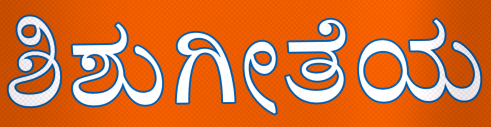
ಶಿಶುಗೀತೆಯ